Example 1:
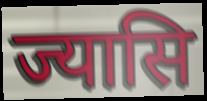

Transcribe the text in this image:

ज्यासि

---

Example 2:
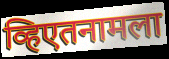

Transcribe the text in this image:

व्हिएतनामला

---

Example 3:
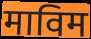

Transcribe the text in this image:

माविम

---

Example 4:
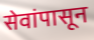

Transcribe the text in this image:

सेवांपासून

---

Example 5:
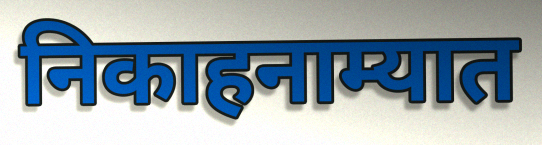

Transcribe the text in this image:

निकाहनाम्यात